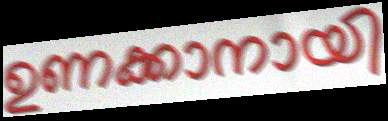
ഉണക്കാനായി